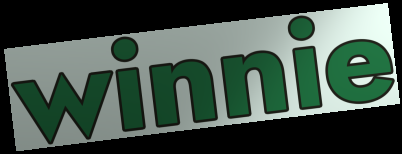
winnie